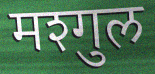
मश्गुल